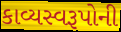
કાવ્યસ્વરૂપોની